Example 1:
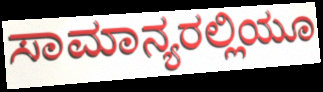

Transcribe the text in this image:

ಸಾಮಾನ್ಯರಲ್ಲಿಯೂ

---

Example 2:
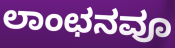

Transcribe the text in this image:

ಲಾಂಛನವೂ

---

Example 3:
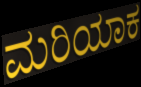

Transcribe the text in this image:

ಮರಿಯಾಕ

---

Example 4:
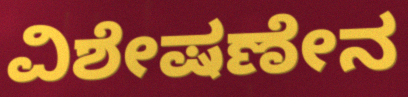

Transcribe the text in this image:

ವಿಶೇಷಣೇನ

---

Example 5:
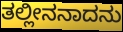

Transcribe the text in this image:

ತಲ್ಲೀನನಾದನು